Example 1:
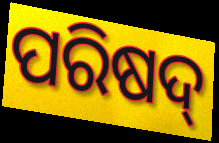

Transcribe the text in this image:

ପରିଷଦ୍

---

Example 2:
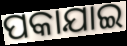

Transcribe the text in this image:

ପକାଯାଇ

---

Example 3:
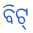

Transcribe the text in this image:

ବିଟ୍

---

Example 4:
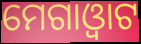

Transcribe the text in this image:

ମେଗାଓ୍ଵାଟ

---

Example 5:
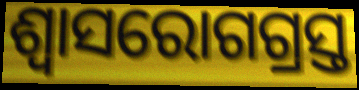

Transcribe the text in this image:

ଶ୍ୱାସରୋଗଗ୍ରସ୍ତ